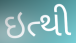
ઇત્થી